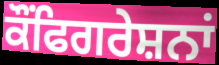
ਕੌਂਫਿਗਰੇਸ਼ਨਾਂ